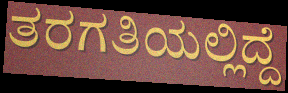
ತರಗತಿಯಲ್ಲಿದ್ದೆ